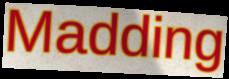
Madding